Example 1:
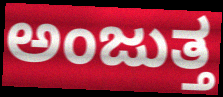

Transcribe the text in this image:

ಅಂಜುತ್ತ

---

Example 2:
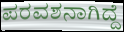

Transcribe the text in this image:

ಪರವಶನಾಗಿದ್ದೆ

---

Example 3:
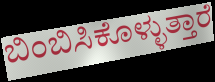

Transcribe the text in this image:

ಬಿಂಬಿಸಿಕೊಳ್ಳುತ್ತಾರೆ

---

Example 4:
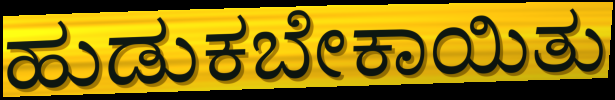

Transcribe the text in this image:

ಹುಡುಕಬೇಕಾಯಿತು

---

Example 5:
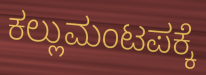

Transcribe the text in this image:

ಕಲ್ಲುಮಂಟಪಕ್ಕೆ